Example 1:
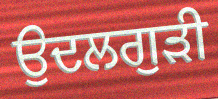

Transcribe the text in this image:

ਉਦਲਗੁੜੀ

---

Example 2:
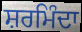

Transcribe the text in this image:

ਸ਼ਰਮਿੰਦਾ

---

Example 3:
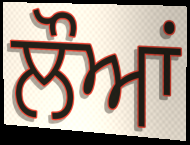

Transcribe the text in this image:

ਲੌਆਂ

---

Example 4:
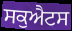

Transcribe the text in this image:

ਸਕੁਐਟਸ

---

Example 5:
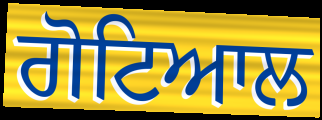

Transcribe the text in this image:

ਗੋਟਿਆਲ